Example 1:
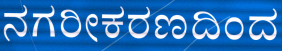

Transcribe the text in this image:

ನಗರೀಕರಣದಿಂದ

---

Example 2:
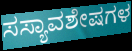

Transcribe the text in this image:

ಸಸ್ಯಾವಶೇಷಗಳ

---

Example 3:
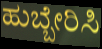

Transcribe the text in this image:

ಹುಬ್ಬೇರಿಸಿ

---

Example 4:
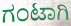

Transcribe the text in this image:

ಗಂಟಾಗಿ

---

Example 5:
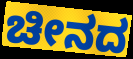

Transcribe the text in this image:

ಚೀನದ